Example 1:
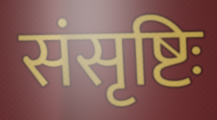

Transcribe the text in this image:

संसृष्टिः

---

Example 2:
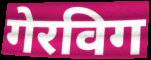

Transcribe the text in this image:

गेरविग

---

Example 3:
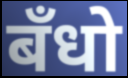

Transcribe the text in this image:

बँधो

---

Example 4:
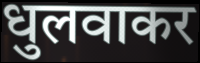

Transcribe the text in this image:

धुलवाकर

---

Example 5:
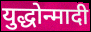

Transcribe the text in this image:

युद्धोन्मादी